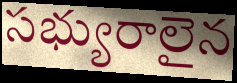
సభ్యురాలైన